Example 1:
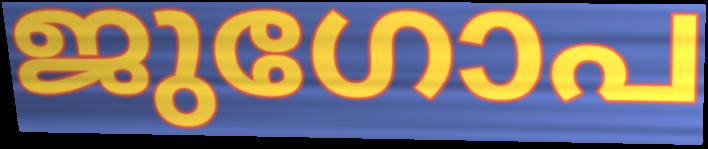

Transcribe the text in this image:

ജുഗോപ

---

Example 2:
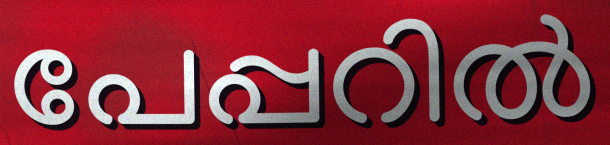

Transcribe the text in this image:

പേപ്പറിൽ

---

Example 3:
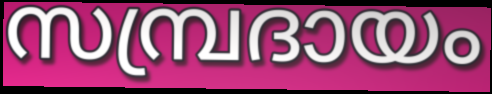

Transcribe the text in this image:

സമ്പ്രദായം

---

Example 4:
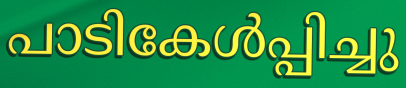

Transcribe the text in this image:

പാടികേൾപ്പിച്ചു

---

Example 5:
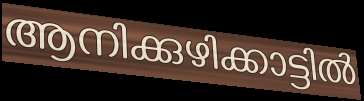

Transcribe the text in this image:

ആനിക്കുഴിക്കാട്ടിൽ